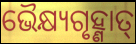
ଭୈକ୍ଷ୍ୟଗୃହ୍ଣାତ୍